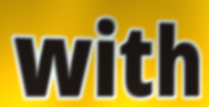
with